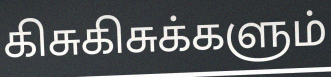
கிசுகிசுக்களும்